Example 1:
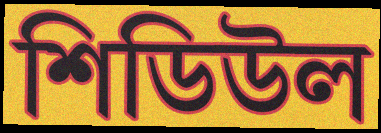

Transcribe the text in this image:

শিডিউল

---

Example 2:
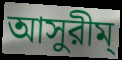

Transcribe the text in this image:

আসুরীম্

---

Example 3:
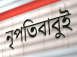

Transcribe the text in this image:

নৃপতিবাবুই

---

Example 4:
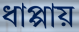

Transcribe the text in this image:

ধাপ্পায়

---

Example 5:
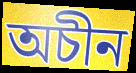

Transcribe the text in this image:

অচীন